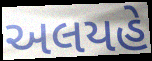
અલયહે